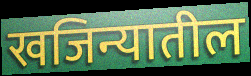
खजिन्यातील